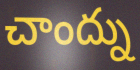
చాంద్ను